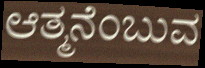
ಆತ್ಮನೆಂಬುವ